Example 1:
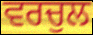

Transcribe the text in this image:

ਵਰਚੁਲ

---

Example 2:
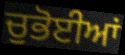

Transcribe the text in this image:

ਚੁਭੋਈਆਂ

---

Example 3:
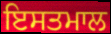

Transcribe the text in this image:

ਇਸਤਮਾਲ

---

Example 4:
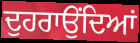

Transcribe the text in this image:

ਦੁਹਰਾਉਂਦਿਆਂ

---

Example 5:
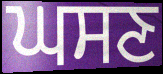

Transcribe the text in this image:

ਘਸਣ